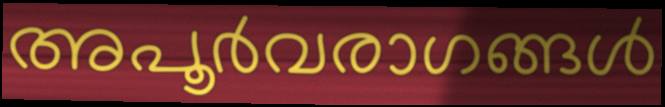
അപൂർവരാഗങ്ങൾ